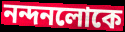
নন্দনলোকে